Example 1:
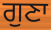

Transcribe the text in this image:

ਗੁਣਾ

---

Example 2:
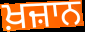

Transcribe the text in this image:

ਖ਼ਜ਼ਾਨ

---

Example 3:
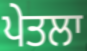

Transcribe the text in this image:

ਪੇਤਲਾ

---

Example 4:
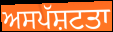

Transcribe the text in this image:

ਅਸਪੱਸ਼ਟਤਾ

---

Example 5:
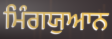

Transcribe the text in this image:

ਮਿੰਗਯੁਆਨ